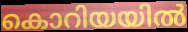
കൊറിയയിൽ